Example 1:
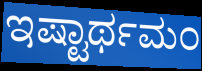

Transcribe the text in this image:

ಇಷ್ಟಾರ್ಥಮಂ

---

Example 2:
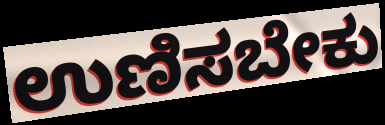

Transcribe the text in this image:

ಉಣಿಸಬೇಕು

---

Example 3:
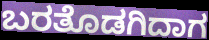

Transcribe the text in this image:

ಬರತೊಡಗಿದಾಗ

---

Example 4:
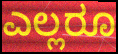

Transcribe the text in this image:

ಎಲ್ಲರೂ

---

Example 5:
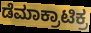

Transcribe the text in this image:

ಡೆಮಾಕ್ರಾಟಿಕ್ರ